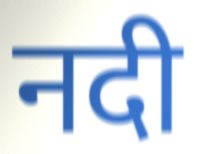
नदी